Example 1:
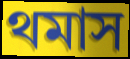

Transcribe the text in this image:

থমাস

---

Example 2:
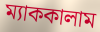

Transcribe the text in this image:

ম্যাককালাম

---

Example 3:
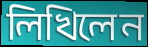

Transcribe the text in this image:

লিখিলেন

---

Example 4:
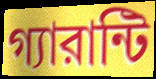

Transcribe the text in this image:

গ্যারান্টি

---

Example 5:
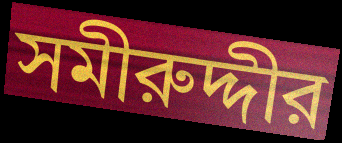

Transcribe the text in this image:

সমীরুদ্দীর